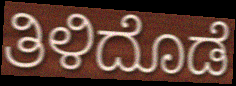
ತಿಳಿದೊಡೆ